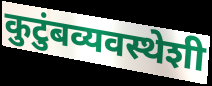
कुटुंबव्यवस्थेशी